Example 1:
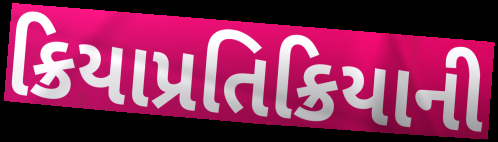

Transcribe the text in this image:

ક્રિયાપ્રતિક્રિયાની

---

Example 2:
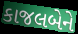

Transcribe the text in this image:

કાજલબેને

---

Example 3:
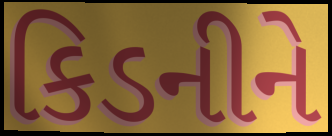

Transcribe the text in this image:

કિડનીને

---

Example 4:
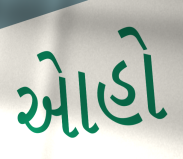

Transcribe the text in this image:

એાહો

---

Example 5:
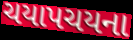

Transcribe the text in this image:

ચયાપચયના